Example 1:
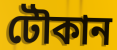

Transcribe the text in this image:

টৌকান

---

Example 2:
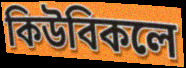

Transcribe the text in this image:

কিউবিকলে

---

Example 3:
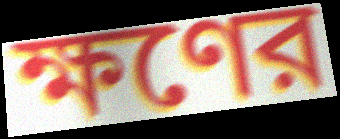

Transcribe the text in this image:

ক্ষণের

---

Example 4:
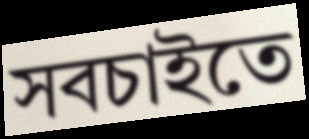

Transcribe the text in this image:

সবচাইতে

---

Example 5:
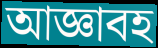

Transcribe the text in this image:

আজ্ঞাবহ